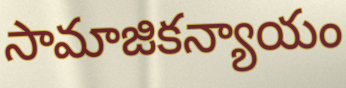
సామాజికన్యాయం